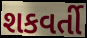
શકવર્તી